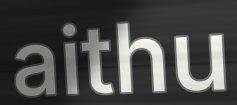
aithu